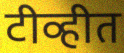
टीव्हीत